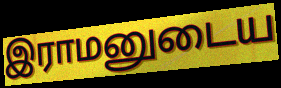
இராமனுடைய